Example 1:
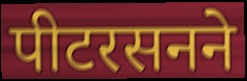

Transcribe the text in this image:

पीटरसनने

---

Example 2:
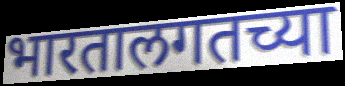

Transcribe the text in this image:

भारतालगतच्या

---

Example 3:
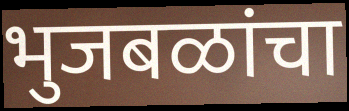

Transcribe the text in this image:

भुजबळांचा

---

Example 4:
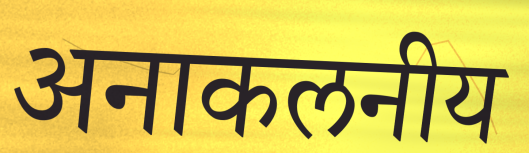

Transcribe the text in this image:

अनाकलनीय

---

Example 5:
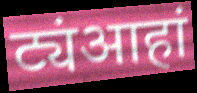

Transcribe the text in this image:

ट्यंआहां